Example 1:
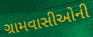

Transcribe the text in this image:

ગ્રામવાસીઓની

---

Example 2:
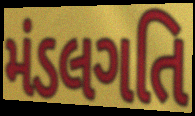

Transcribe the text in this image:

મંડલગતિ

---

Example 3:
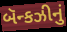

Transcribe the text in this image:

બૅન્કઝીનું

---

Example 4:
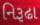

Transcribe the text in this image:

નિરૂઢા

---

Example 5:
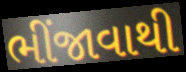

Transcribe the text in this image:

ભીંજાવાથી